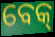
ବେକ୍